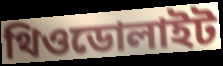
থিওডোলাইট